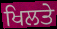
ਖਿਲਤੇ